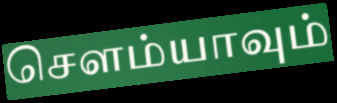
சௌம்யாவும்